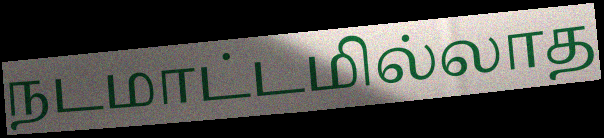
நடமாட்டமில்லாத